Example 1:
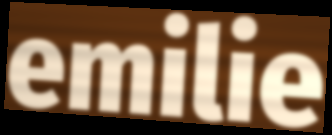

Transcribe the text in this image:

emilie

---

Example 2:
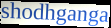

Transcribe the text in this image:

shodhganga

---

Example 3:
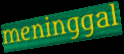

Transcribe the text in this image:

meninggal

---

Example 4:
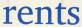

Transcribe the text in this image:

rents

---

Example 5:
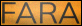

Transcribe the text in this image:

FARA